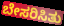
ಬೇಸರಿಸಿತು